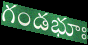
గండభూః